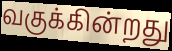
வகுக்கின்றது